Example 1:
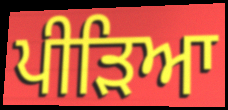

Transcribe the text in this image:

ਪੀੜਿਆ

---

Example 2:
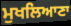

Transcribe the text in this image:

ਮੁਖਲਿਆਣਾ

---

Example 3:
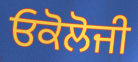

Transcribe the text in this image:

ਓਕੋਲੋਜੀ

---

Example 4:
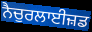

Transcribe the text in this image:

ਨੈਚੁਰਲਾਈਜ਼ਡ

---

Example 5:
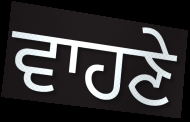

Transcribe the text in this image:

ਵਾਹਣੇ